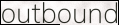
outbound